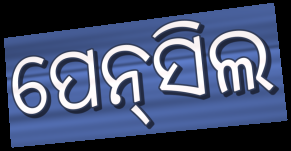
ପେନ୍‌ସିଲ